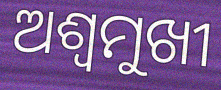
ଅଶ୍ୱମୁଖୀ